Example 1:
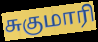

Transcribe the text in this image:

சுகுமாரி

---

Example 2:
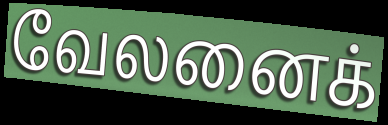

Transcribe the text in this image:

வேலனைக்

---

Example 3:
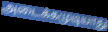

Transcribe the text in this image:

அடைக்கமுடியாது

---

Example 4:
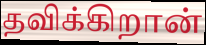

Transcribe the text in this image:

தவிக்கிறான்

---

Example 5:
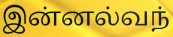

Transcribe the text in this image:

இன்னல்வந்